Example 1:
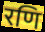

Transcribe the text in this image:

रणि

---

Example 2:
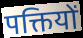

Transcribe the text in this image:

पक्तियों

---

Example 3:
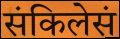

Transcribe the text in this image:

संकिलेसं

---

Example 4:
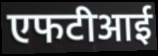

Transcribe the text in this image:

एफटीआई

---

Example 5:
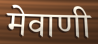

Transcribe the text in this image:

मेवाणी